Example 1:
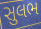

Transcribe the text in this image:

સુલભ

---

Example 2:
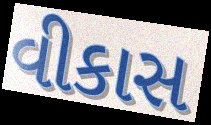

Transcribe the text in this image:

વીકાસ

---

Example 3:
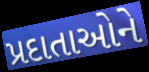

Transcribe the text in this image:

પ્રદાતાઓને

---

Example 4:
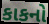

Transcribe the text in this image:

કાકનો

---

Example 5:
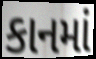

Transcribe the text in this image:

કાનમાં